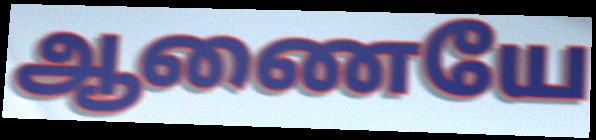
ஆணையே